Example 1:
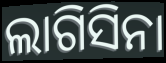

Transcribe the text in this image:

ଲାଗିସିନା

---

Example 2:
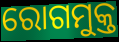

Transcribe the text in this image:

ରୋଗମୁକ୍ତ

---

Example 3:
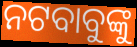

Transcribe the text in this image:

ନଟବାବୁଙ୍କୁ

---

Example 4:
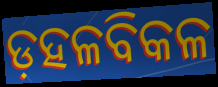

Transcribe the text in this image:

ଡ଼ହଳବିକଳ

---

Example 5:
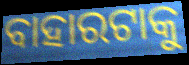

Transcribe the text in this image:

ବାହାରଟାକୁ